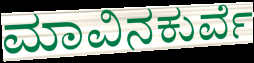
ಮಾವಿನಕುರ್ವೆ